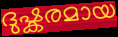
ദുഷ്കരമായ